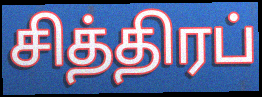
சித்திரப்